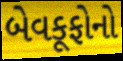
બેવકૂફોનો